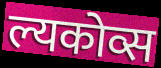
ल्यकोव्स